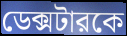
ডেক্সটারকে